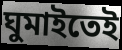
ঘুমাইতেই